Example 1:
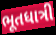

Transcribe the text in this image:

ભૂતધાત્રી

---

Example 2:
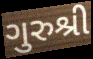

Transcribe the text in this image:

ગુરુશ્રી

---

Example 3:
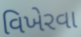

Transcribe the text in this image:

વિખેરવા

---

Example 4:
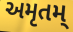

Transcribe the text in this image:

અમૃતમ્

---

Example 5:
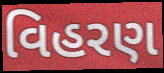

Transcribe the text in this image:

વિહરણ